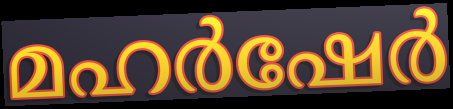
മഹർഷേർ